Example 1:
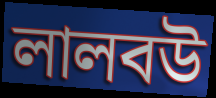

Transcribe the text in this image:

লালবউ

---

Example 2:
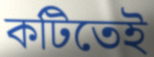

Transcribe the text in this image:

কটিতেই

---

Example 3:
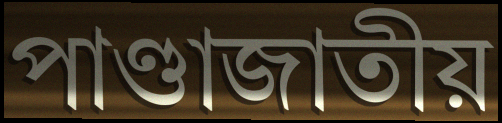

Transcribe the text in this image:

পাণ্ডাজাতীয়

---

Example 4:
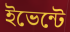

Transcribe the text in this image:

ইভেন্টে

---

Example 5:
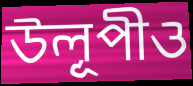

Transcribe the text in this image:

উলূপীও